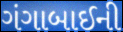
ગંગાબાઈની